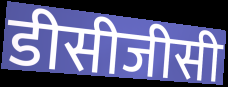
डीसीजीसी